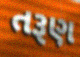
તરૂણ